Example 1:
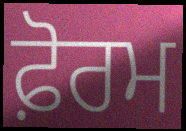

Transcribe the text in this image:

ਫ਼ੋਰਮ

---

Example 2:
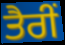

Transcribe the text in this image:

ਤੈਰੀਂ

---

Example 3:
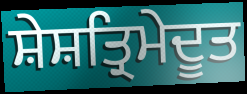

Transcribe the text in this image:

ਸ਼ੇਸ਼ਤ੍ਰਿਮੇਦੂਤ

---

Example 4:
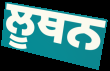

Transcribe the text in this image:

ਲੂਥਨ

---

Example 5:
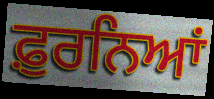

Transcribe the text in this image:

ਫ਼ੁਰਨਿਆਂ